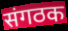
संगठक